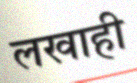
लखाही